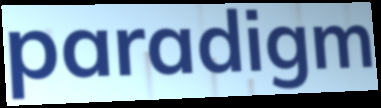
paradigm